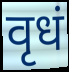
वृधं